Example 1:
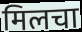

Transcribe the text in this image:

मिलचा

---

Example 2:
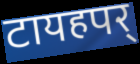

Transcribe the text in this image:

टायहपर्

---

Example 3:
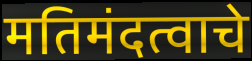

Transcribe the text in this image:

मतिमंदत्वाचे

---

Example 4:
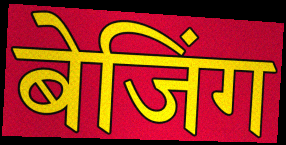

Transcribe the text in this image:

बेजिंग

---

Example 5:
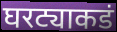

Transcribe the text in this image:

घरट्याकडं